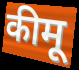
कीमू